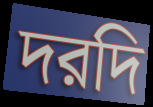
দরদি